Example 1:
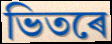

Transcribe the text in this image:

ভিতৰে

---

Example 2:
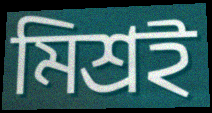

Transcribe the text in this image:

মিশ্ৰই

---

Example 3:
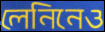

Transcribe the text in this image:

লেনিনেও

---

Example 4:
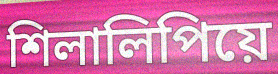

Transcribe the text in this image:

শিলালিপিয়ে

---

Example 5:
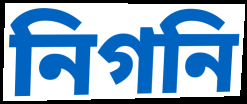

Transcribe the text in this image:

নিগনি